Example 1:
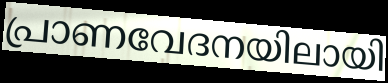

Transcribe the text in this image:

പ്രാണവേദനയിലായി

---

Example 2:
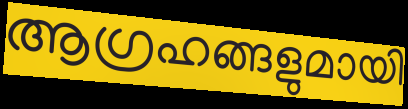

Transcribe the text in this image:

ആഗ്രഹങ്ങളുമായി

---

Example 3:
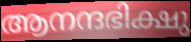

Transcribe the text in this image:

ആനന്ദഭിക്ഷു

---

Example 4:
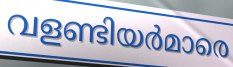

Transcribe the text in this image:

വളണ്ടിയർമാരെ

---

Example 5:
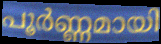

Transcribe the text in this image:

പൂർണ്ണമായി